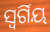
ସ୍ୱର୍ଗିୟ